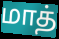
மாத்